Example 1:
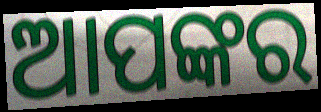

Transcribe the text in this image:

ଆପଙ୍କର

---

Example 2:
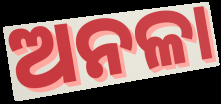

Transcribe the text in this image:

ଅନଳା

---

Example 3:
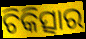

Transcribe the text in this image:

ଚିକିତ୍ସାର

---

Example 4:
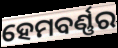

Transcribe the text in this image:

ହେମବର୍ଣ୍ଣର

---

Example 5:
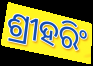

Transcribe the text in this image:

ଶ୍ରୀହରିଂ